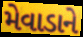
મેવાડાને